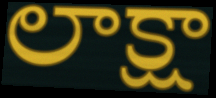
లాక్షా